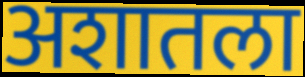
अशातला